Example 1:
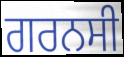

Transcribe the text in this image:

ਗਰਨਸੀ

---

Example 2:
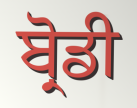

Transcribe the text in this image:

ਬ੍ਰੋਡੀ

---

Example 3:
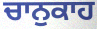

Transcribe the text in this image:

ਚਾਨੁਕਾਹ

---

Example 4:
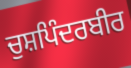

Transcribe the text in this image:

ਚੁਸ਼ਪਿੰਦਰਬੀਰ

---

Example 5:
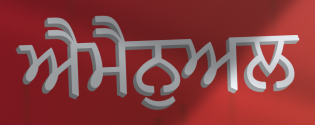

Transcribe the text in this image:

ਐਮੈਨੁਅਲ